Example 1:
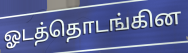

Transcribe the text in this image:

ஓடத்தொடங்கின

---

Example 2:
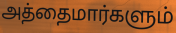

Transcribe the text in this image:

அத்தைமார்களும்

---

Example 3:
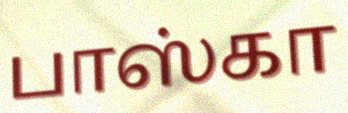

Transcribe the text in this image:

பாஸ்கா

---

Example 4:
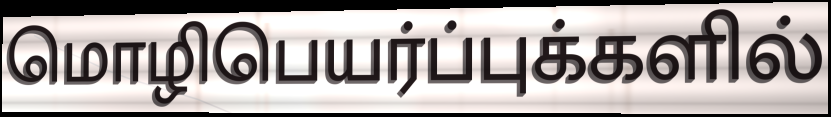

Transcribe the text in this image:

மொழிபெயர்ப்புக்களில்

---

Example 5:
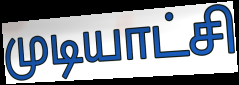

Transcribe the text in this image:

முடியாட்சி